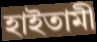
হাইতামী